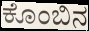
ಕೊಂಬಿನ